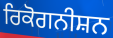
ਰਿਕੋਗਨੀਸ਼ਨ